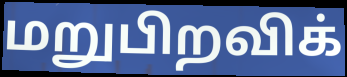
மறுபிறவிக்